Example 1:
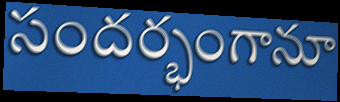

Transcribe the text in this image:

సందర్భంగానూ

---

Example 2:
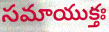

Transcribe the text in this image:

సమాయుక్తః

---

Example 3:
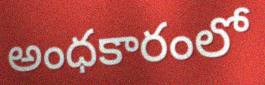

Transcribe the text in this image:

అంధకారంలో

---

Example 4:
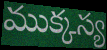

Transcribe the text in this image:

ముక్కస్య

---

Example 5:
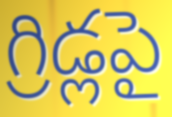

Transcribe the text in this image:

గ్రిడ్లపై